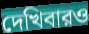
দেখিবারও